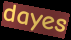
dayes